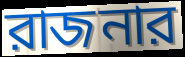
রাজনার